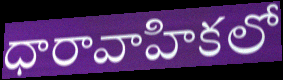
ధారావాహికలో